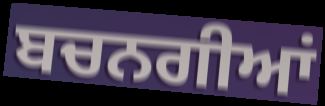
ਬਚਨਗੀਆਂ